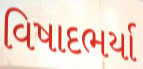
વિષાદભર્યા